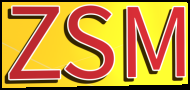
ZSM